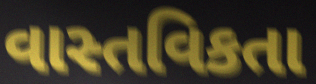
વાસ્તવિકતા